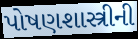
પોષણશાસ્ત્રીની